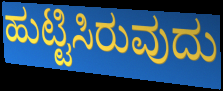
ಹುಟ್ಟಿಸಿರುವುದು